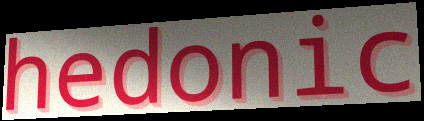
hedonic